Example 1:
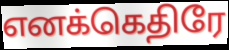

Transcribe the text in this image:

எனக்கெதிரே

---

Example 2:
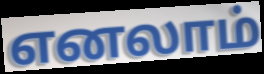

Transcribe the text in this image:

எனலாம்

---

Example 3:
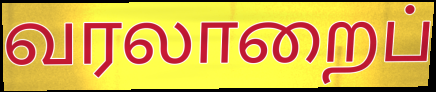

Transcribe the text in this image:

வரலாறைப்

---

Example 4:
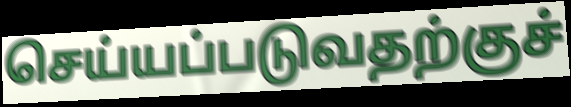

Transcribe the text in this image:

செய்யப்படுவதற்குச்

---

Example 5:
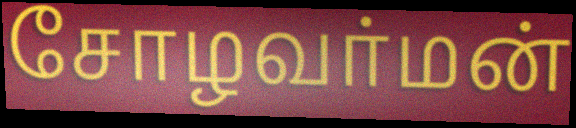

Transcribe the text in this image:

சோழவர்மன்